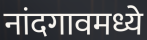
नांदगावमध्ये